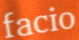
facio